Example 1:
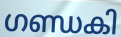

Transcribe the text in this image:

ഗണ്ഡകി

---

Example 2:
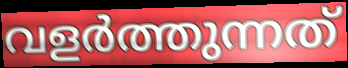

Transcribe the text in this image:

വളർത്തുന്നത്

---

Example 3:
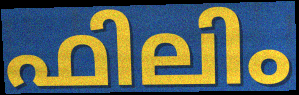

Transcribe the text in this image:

ഫിലിം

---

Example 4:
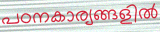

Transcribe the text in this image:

പഠനകാര്യങ്ങളിൽ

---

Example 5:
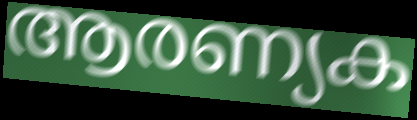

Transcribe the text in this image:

ആരണ്യക